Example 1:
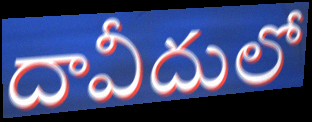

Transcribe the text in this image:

దావీదులో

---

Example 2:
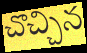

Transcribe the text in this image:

చొచ్చిన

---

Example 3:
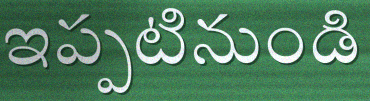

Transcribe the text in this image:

ఇప్పటినుండి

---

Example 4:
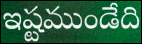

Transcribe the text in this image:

ఇష్టముండేది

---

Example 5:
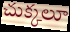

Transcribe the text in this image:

చుక్కలూ